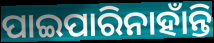
ପାଇପାରିନାହାଁନ୍ତି